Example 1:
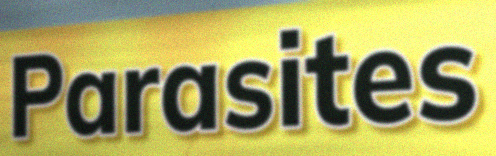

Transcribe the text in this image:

Parasites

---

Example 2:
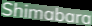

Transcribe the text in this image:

Shimabara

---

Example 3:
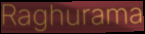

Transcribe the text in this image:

Raghurama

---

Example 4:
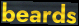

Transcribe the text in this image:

beards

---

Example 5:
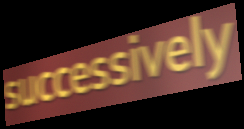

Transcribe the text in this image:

successively